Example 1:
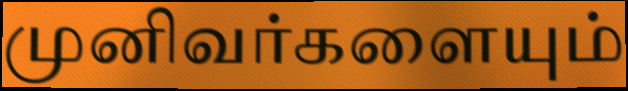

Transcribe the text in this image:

முனிவர்களையும்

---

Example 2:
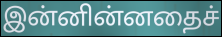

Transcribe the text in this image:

இன்னின்னதைச்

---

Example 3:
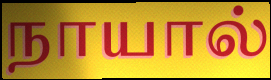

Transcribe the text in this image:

நாயால்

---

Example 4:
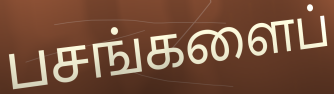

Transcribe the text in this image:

பசங்களைப்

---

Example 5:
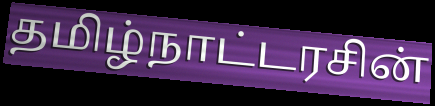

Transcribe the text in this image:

தமிழ்நாட்டரசின்